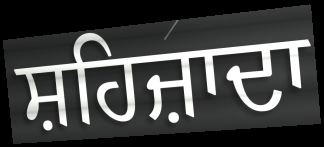
ਸ਼ਹਿਜ਼ਾਦਾ